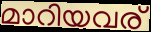
മാറിയവര്